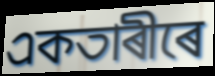
একতাৰীৰে